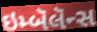
ઇમ્બૅલૅન્સ